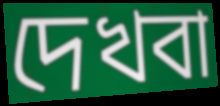
দেখবা